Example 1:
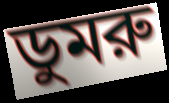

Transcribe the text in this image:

ডুমরু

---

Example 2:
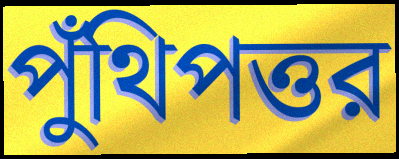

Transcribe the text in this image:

পুঁথিপত্তর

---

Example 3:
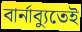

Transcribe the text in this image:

বার্নাব্যুতেই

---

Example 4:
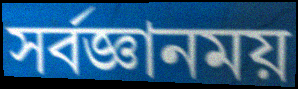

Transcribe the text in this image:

সর্বজ্ঞানময়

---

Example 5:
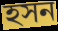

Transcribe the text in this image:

হসন